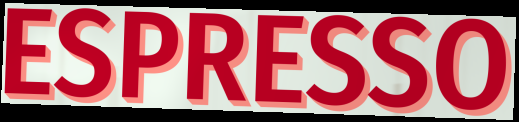
ESPRESSO